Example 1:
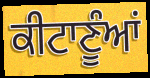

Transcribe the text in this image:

ਕੀਟਾਣੂੰਆਂ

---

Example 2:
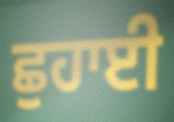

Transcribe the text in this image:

ਛੁਹਾਈ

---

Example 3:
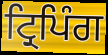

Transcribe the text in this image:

ਟ੍ਰਿਪਿੰਗ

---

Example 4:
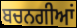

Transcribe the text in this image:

ਬਚਨਗੀਆਂ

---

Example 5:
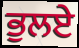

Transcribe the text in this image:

ਭੁਲਏ